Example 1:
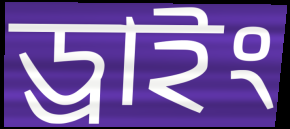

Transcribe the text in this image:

ড্রাইং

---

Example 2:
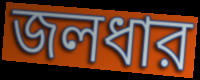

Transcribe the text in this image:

জলধার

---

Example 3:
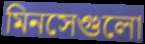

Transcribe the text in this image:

মিনসেগুলো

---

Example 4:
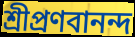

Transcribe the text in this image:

শ্রীপ্রণবানন্দ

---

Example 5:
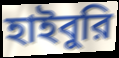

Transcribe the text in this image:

হাইবুরি